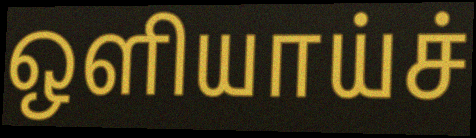
ஒளியாய்ச்